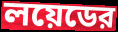
লয়েডের